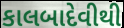
કાલબાદેવીથી